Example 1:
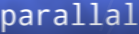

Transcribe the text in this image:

parallal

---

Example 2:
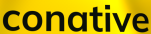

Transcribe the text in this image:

conative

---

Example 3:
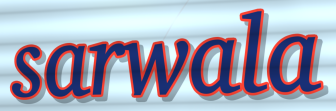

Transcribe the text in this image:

sarwala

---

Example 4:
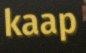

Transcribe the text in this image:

kaap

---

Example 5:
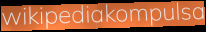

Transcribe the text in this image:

wikipediakompulsa